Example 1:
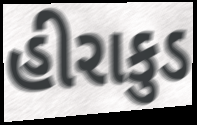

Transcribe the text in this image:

હીરાકુડ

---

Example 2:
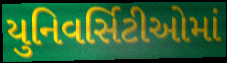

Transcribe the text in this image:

યુનિવર્સિટીઓમાં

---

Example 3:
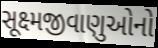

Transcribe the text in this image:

સૂક્ષ્મજીવાણુઓનો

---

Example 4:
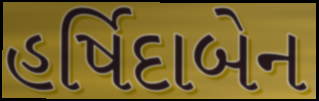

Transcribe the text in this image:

હર્ષિદાબેન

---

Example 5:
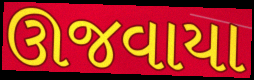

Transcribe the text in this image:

ઊજવાયા